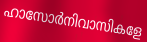
ഹാസോർനിവാസികളേ